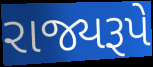
રાજ્યરૂપે